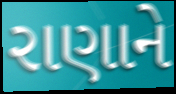
રાણાને